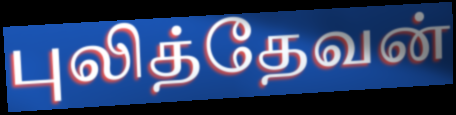
புலித்தேவன்